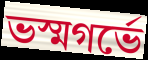
ভস্মগর্ভে